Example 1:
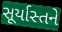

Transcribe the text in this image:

સૂર્યાસ્તને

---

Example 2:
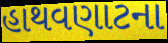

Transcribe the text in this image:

હાથવણાટના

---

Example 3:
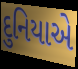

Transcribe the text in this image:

દુનિયાએ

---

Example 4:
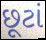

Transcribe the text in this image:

છૂટાં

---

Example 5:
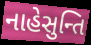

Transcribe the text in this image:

નાહેસુન્તિ